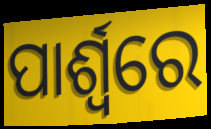
ପାର୍ଶ୍ଵରେ